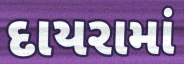
દાયરામાં